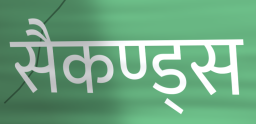
सैकण्ड्स